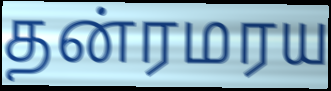
தன்ரமரய